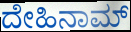
ದೇಹಿನಾಮ್